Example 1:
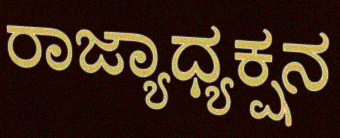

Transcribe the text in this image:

ರಾಜ್ಯಾಧ್ಯಕ್ಷನ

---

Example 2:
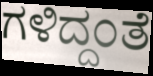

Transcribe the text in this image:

ಗಳಿದ್ದಂತೆ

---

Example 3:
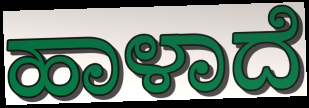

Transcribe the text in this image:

ಹಾಳಾದೆ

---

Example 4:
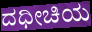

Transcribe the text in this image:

ದಧೀಚಿಯ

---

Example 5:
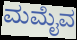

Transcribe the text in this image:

ಮಮೈವ